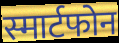
स्‍मार्टफोन